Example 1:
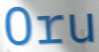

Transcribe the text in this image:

Oru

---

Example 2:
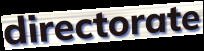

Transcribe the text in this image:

directorate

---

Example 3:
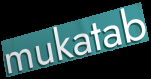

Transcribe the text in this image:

mukatab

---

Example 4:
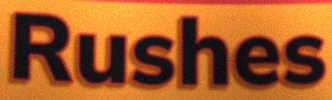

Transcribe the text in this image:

Rushes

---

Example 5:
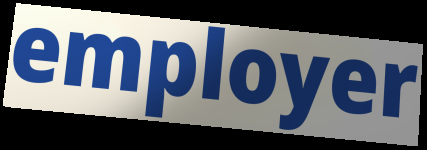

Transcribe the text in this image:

employer